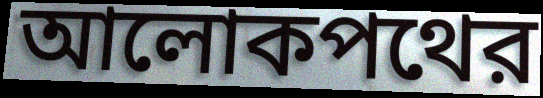
আলোকপথের